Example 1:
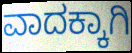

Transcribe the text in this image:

ವಾದಕ್ಕಾಗಿ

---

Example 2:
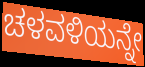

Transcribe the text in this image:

ಚಳವಳಿಯನ್ನೇ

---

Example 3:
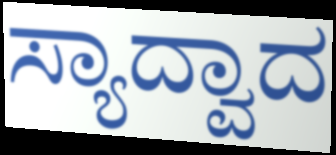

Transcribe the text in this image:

ಸ್ಯಾದ್ವಾದ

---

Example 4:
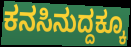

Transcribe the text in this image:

ಕನಸಿನುದ್ದಕ್ಕೂ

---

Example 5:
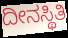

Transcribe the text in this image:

ದೀನಸ್ಥಿತಿ